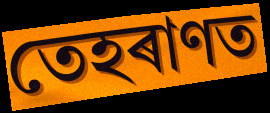
তেহৰাণত